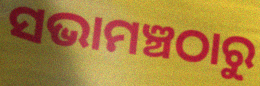
ସଭାମଞ୍ଚଠାରୁ